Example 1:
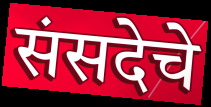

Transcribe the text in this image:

संसदेचे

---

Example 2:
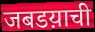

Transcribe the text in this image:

जबडय़ाची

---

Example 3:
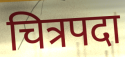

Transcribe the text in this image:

चित्रपदा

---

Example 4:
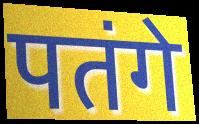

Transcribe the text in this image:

पतंगे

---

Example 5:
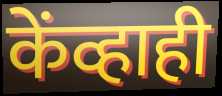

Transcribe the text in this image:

केंव्हाही